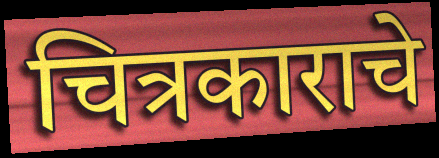
चित्रकाराचे